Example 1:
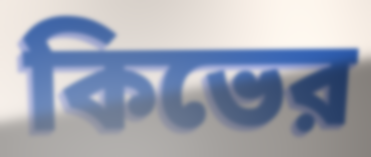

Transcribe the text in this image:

কিভের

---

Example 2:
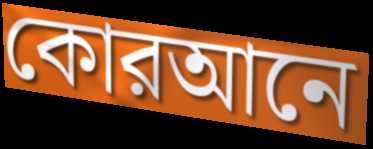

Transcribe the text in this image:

কোরআনে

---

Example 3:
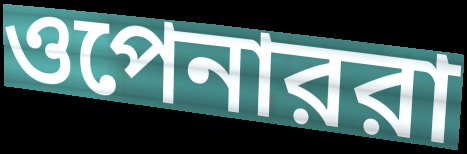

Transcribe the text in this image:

ওপেনাররা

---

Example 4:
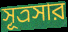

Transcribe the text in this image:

সূত্রসার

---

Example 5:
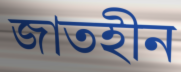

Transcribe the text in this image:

জাতহীন